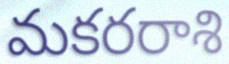
మకరరాశి